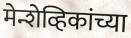
मेन्शेव्हिकांच्या